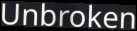
Unbroken